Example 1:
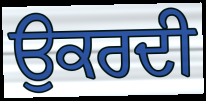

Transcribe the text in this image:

ਉਕਰਦੀ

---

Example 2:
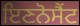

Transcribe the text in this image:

ਇਣਨੋਸੈਂਟ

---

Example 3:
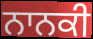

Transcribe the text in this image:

ਨਾਨਕੀ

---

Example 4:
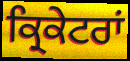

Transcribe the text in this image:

ਕ੍ਰਿਕੇਟਰਾਂ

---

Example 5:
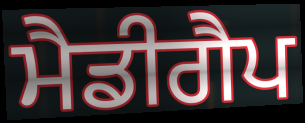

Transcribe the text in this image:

ਮੈਡੀਗੈਪ